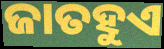
ଜାତହୁଏ